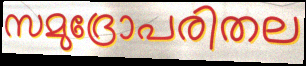
സമുദ്രോപരിതല